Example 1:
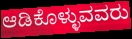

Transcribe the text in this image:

ಆಡಿಕೊಳ್ಳುವವರು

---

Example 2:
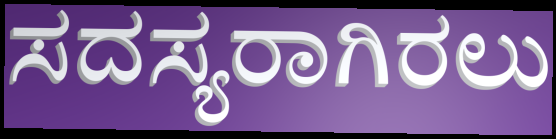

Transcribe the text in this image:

ಸದಸ್ಯರಾಗಿರಲು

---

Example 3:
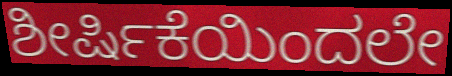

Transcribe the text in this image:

ಶೀರ್ಷಿಕೆಯಿಂದಲೇ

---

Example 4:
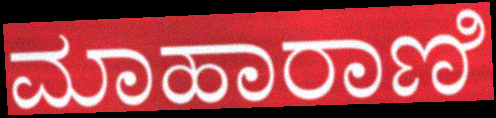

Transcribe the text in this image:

ಮಾಹಾರಾಣಿ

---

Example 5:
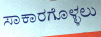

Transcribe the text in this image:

ಸಾಕಾರಗೊಳ್ಳಲು